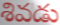
శివడు